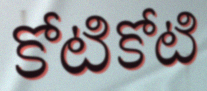
కోటికోటి